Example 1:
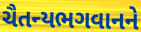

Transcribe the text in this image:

ચૈતન્યભગવાનને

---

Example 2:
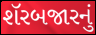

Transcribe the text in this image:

શૅરબજારનું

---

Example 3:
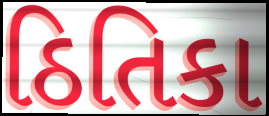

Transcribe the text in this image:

ઠિતિકા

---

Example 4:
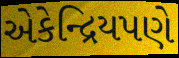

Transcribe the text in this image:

એકેન્દ્રિયપણે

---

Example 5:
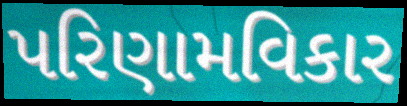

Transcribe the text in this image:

પરિણામવિકાર